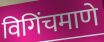
विगिंचमाणे